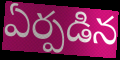
ఏర్పడిన